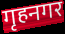
गृहनगर